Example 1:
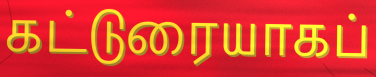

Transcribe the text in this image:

கட்டுரையாகப்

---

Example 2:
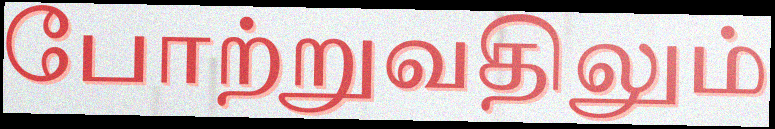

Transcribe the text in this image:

போற்றுவதிலும்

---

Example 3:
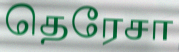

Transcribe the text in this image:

தெரேசா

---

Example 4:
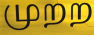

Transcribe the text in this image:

முறற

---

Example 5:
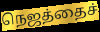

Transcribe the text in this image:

நெஜத்தைச்